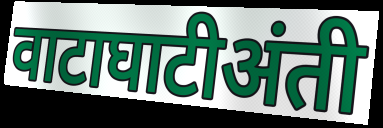
वाटाघाटीअंती